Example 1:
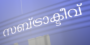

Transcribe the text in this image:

സബ്ട്രാക്ടീവ്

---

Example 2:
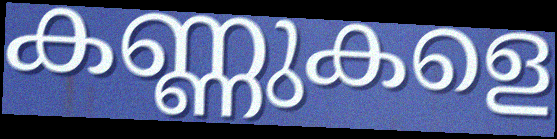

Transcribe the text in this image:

കണ്ണുകളെ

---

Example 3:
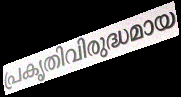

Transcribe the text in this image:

പ്രകൃതിവിരുദ്ധമായ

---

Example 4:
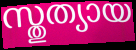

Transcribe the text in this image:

സ്തുത്യായ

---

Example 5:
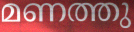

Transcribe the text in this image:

മണത്തു